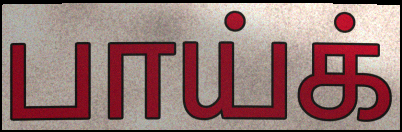
பாய்க்